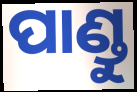
ପାଣ୍ଡୁ